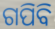
ଗପିବି